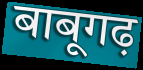
बाबूगढ़